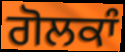
ਗੋਲਕਾੰ